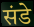
संडे